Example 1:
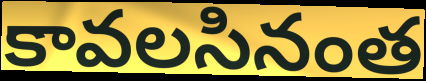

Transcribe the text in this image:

కావలసినంత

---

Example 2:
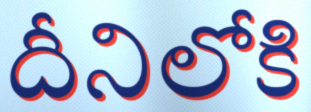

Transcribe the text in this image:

దీనిలోకి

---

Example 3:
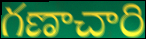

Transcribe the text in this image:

గణాచారి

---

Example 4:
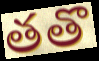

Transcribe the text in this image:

తతొ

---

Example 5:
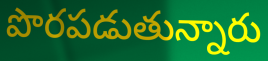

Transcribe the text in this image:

పొరపడుతున్నారు